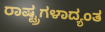
ರಾಷ್ಟ್ರಗಳಾದ್ಯಂತ